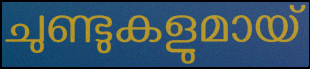
ചുണ്ടുകളുമായ്